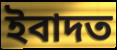
ইবাদত